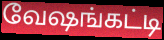
வேஷங்கட்டி